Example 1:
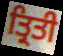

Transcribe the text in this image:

ਤ੍ਰਿਤੀ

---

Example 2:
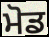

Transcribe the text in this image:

ਮੋਡ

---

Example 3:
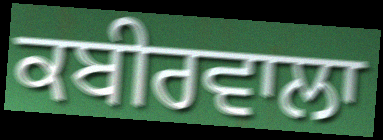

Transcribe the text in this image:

ਕਬੀਰਵਾਲਾ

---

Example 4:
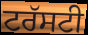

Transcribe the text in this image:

ਟਰੱਸਟੀ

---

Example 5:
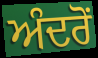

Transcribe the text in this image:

ਅੰਦਰੋਂ